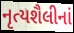
નૃત્યશૈલીનાં